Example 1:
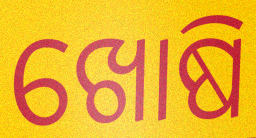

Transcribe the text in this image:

ଖୋଷି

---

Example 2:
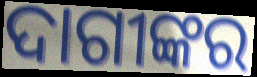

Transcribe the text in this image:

ଦାଗୀଙ୍କର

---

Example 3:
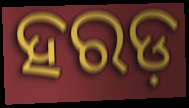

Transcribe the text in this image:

ହରଡ଼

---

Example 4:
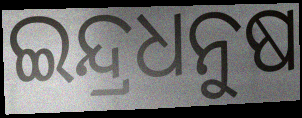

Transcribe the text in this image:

ଇନ୍ଦ୍ରଧନୁଷ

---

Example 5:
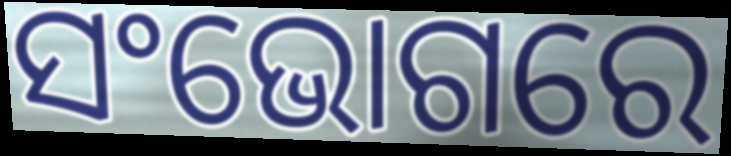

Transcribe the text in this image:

ସଂଭୋଗରେ